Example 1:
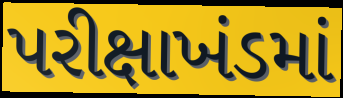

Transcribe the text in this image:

પરીક્ષાખંડમાં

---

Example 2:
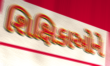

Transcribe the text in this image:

શિક્ષિકાઓને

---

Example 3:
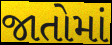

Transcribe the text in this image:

જાતોમાં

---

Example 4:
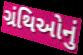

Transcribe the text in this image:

ગ્રંથિઓનું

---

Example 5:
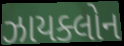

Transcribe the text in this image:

ઝાયક્લોન